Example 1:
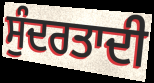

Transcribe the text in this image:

ਸੁੰਦਰਤਾਦੀ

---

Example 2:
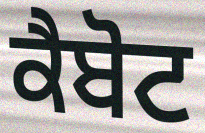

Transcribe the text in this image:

ਕੈਬੋਟ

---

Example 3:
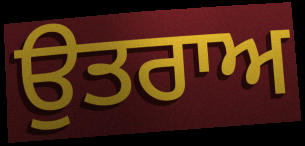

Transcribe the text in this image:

ਉਤਰਾਅ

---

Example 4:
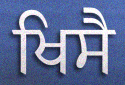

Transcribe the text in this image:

ਖਿਸੈ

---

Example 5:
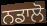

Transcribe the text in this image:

ਨਡਾਲੋ